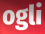
ogli